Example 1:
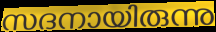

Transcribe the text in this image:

സദനായിരുന്നു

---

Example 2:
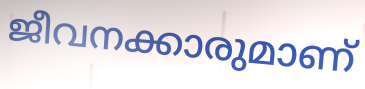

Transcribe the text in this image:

ജീവനക്കാരുമാണ്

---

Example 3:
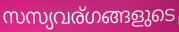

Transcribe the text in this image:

സസ്യവര്ഗങ്ങളുടെ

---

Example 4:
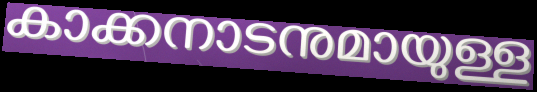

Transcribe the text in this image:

കാക്കനാടനുമായുള്ള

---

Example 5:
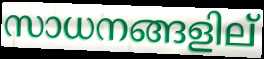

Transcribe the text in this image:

സാധനങ്ങളില്